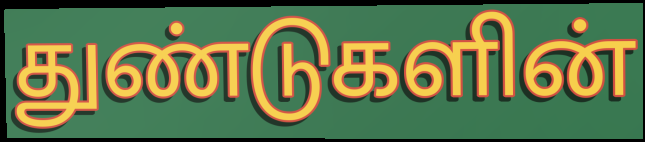
துண்டுகளின்